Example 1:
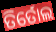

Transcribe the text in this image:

ତିର୍ତୋଲ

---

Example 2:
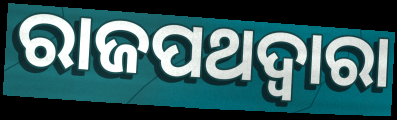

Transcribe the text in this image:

ରାଜପଥଦ୍ୱାରା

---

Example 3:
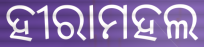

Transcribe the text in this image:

ହୀରାମହଲ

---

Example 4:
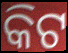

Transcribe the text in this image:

କିଟ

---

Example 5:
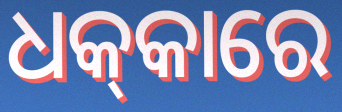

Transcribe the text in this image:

ଧକ୍‍କାରେ